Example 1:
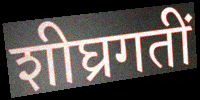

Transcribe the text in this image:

शीघ्रगतीं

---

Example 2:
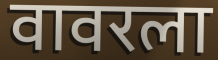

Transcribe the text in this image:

वावरला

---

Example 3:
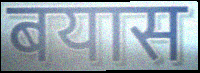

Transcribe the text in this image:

बयास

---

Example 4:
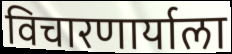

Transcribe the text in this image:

विचारणार्याला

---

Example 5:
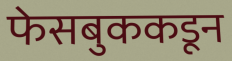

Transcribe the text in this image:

फेसबुककडून